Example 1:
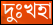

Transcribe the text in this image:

দুঃখহা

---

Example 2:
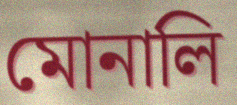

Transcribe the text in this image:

মোনালি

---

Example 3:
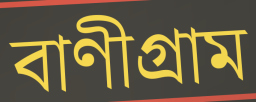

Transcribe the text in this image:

বাণীগ্রাম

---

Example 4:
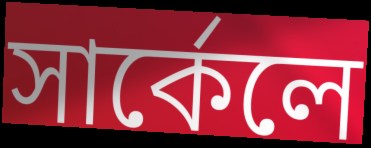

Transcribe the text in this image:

সার্কেলে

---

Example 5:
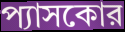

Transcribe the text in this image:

প্যাসকোর